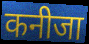
कनीजा